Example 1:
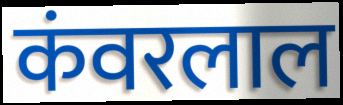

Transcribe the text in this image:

कंवरलाल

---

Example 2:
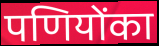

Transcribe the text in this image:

पणियोंका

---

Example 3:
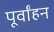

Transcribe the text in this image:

पूर्वांहन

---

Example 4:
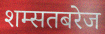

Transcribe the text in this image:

शम्सतबरेज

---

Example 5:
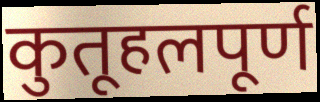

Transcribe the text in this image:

कुतूहलपूर्ण